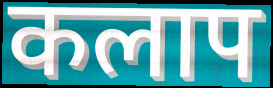
कलाप